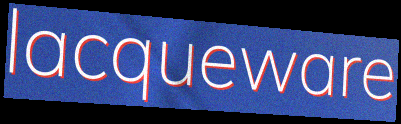
lacqueware